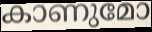
കാണുമോ